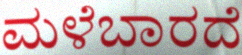
ಮಳೆಬಾರದೆ